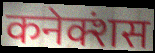
कनेक्शंस